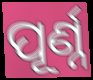
ପୂର୍ଣ୍ନ